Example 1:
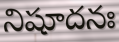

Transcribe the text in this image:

నిషూదనః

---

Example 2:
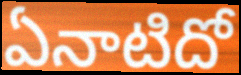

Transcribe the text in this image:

ఏనాటిదో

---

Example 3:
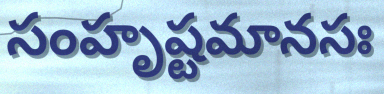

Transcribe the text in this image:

సంహృష్టమానసః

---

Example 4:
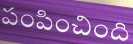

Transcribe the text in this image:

పంపించింది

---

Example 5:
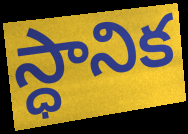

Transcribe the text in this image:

స్ధానిక